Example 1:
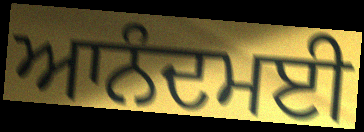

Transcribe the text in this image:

ਆਨੰਦਮਈ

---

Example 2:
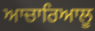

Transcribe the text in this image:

ਆਚਾਰਿਆਲੂ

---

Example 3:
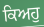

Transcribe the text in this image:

ਕਿਅਹੁ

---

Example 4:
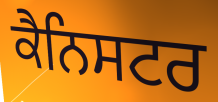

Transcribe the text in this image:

ਕੈਨਿਸਟਰ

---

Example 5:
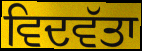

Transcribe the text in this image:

ਵਿਦਵੱਤਾ